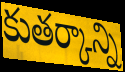
కుతర్కాన్ని